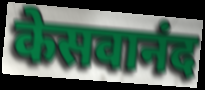
केसवानंद